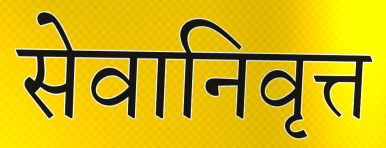
सेवानिवृत्त